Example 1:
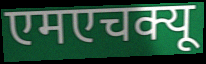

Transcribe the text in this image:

एमएचक्यू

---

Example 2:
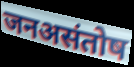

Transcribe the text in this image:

जनअसंतोष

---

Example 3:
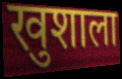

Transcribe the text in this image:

खुशाला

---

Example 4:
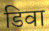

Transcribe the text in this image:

डिवा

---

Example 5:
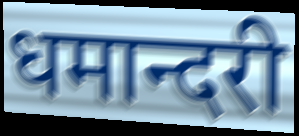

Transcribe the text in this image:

धमान्दरी